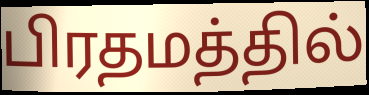
பிரதமத்தில்